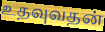
உதவுவதன்